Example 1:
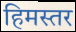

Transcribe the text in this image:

हिमस्तर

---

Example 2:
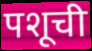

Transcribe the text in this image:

पशूची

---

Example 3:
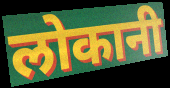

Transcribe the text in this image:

लोकानी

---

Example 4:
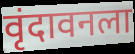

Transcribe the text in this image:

वृंदावनला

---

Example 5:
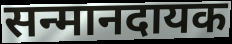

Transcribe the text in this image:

सन्मानदायक